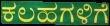
ಕಲಹಗಳಿಗೆ